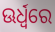
ଊର୍ଧ୍ୱରେ